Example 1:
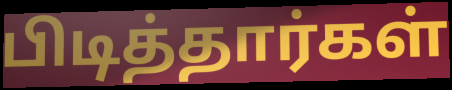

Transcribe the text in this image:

பிடித்தார்கள்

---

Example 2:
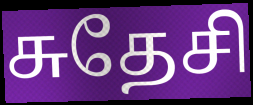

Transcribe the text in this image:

சுதேசி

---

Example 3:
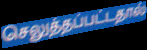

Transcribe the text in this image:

செலுத்தப்பட்டதால்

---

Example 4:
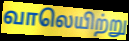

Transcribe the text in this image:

வாலெயிற்று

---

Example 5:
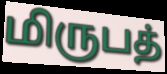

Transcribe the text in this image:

மிருபத்